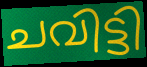
ചവിട്ടി